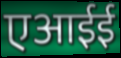
एआईई